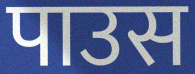
पाउस